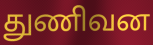
துணிவன